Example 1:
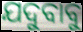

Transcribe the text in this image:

ଯଦୁବାବୁ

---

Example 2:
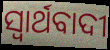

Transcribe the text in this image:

ସ୍ୱାର୍ଥବାଦୀ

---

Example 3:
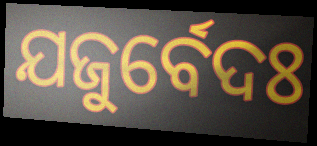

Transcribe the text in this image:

ଯଜୁର୍ବେଦଃ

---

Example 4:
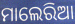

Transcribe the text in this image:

ମାଲେରିଆ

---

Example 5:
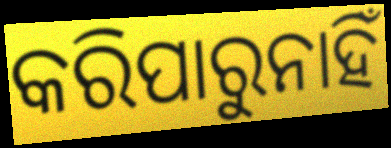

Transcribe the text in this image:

କରିପାରୁନାହିଁ